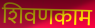
शिवणकाम